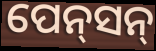
ପେନ୍‍ସନ୍